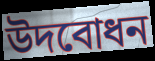
উদবোধন